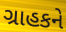
ગ્રાહકને